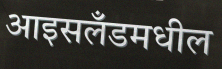
आइसलँडमधील